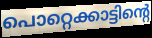
പൊറ്റെക്കാട്ടിന്റെ